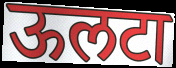
ऊलटा